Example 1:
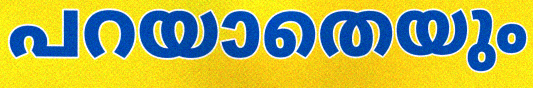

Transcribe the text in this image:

പറയാതെയും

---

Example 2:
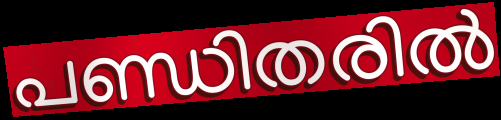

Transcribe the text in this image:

പണ്ഡിതരിൽ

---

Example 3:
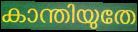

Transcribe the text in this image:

കാന്തിയുതേ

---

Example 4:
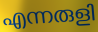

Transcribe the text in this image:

എന്നരുളി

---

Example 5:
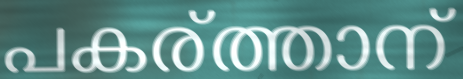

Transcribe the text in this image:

പകര്ത്താന്